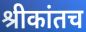
श्रीकांतच